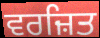
ਵਰਜ਼ਿਤ